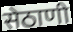
सेठाणी